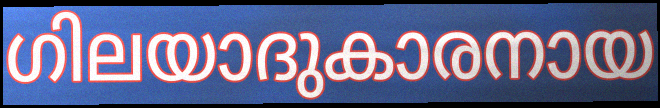
ഗിലയാദുകാരനായ